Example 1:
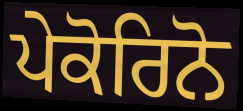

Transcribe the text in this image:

ਪੇਕੋਰਿਨੋ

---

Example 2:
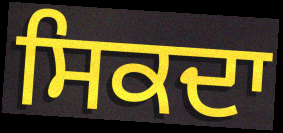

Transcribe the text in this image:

ਸਿਕਦਾ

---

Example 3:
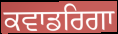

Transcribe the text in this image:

ਕਵਾਡਰਿਗਾ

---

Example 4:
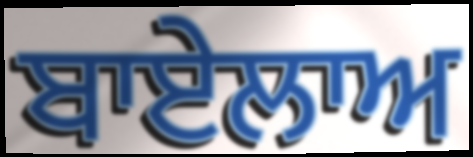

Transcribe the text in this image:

ਬਾਏਲਾਅ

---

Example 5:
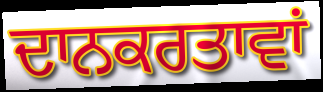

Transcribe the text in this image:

ਦਾਨਕਰਤਾਵਾਂ